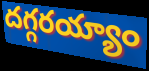
దగ్గరయ్యాం